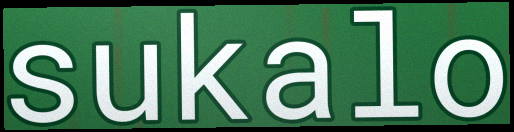
sukalo